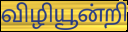
விழியூன்றி